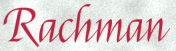
Rachman